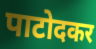
पाटोदकर